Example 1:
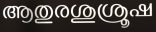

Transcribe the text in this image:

ആതുരശുശ്രൂഷ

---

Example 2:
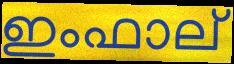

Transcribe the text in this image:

ഇംഫാല്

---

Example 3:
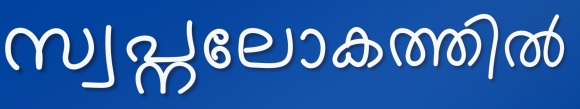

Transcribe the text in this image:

സ്വപ്നലോകത്തിൽ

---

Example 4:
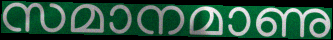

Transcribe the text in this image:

സമാനമാണു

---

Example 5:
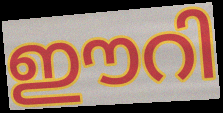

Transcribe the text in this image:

ഈറി